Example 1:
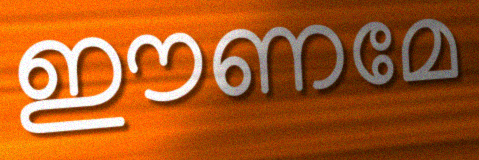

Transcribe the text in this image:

ഈണമേ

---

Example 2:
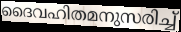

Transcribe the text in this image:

ദൈവഹിതമനുസരിച്ച്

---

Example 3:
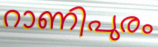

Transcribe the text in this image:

റാണിപുരം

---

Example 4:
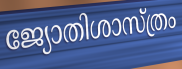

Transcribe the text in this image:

ജ്യോതിശാസ്ത്രം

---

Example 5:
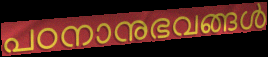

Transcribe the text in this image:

പഠനാനുഭവങ്ങൾ